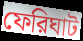
ফেরিঘাট